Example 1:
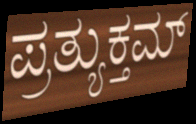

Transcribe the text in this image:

ಪ್ರತ್ಯುಕ್ತಮ್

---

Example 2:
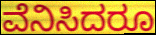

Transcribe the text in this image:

ವೆನಿಸಿದರೂ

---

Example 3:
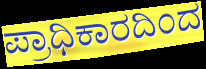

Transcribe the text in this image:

ಪ್ರಾಧಿಕಾರದಿಂದ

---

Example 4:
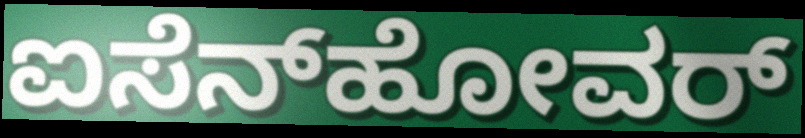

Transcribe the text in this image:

ಐಸೆನ್‍ಹೋವರ್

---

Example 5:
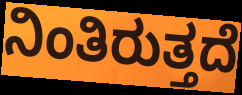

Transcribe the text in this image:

ನಿಂತಿರುತ್ತದೆ